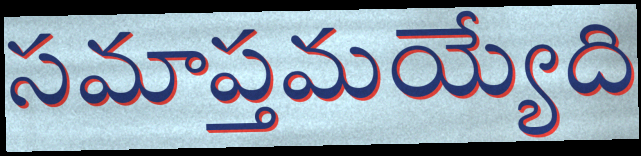
సమాప్తమయ్యేది